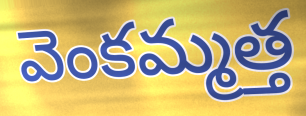
వెంకమ్మత్త